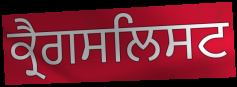
ਕ੍ਰੈਗਸਲਿਸਟ